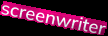
screenwriter